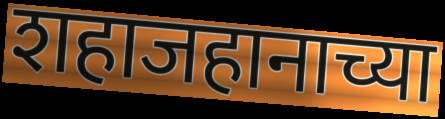
शहाजहानाच्या